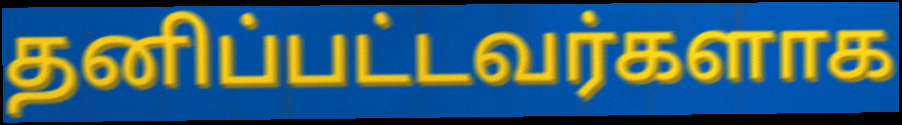
தனிப்பட்டவர்களாக